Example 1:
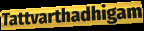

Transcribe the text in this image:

Tattvarthadhigam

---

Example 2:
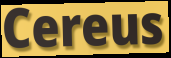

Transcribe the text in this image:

Cereus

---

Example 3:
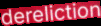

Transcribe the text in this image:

dereliction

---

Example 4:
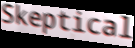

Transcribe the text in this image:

Skeptical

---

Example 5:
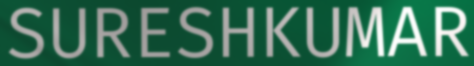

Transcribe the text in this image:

SURESHKUMAR